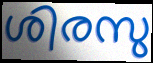
ശിരസു